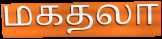
மகதலா